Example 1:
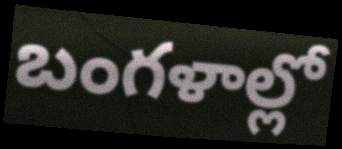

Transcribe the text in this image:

బంగళాల్లో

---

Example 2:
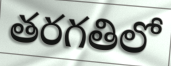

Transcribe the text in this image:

తరగతిలో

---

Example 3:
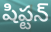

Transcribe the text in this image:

షిప్టన్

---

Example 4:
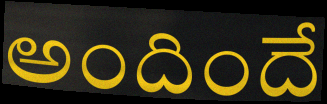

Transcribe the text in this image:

అందిందే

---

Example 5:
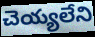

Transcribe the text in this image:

చెయ్యలేని